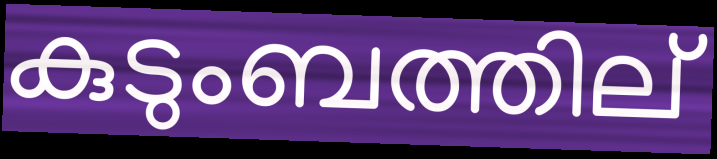
കുടുംബത്തില്